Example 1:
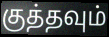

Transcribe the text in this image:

குத்தவும்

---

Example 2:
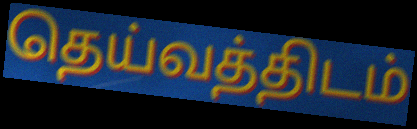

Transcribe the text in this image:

தெய்வத்திடம்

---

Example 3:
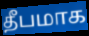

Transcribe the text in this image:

தீபமாக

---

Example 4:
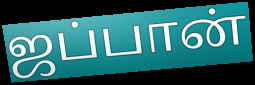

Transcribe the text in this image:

ஜப்பான்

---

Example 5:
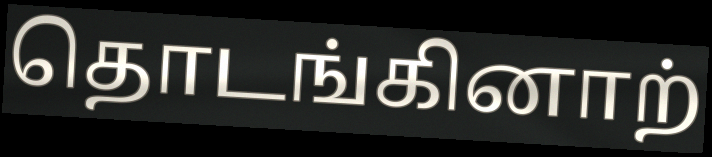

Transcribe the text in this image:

தொடங்கினாற்